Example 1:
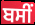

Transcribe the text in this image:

ਬਸੀਂ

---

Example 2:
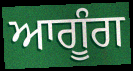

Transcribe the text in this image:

ਆਗੂੰਗ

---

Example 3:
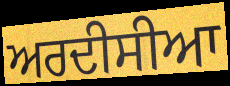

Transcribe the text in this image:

ਅਰਦੀਸੀਆ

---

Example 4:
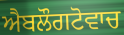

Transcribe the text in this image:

ਐਬਲੌਗਟੋਵਾਚ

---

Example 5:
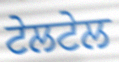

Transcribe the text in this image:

ਟੇਲਟੇਲ